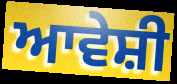
ਆਵੇਸ਼ੀ